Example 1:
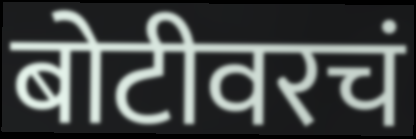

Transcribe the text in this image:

बोटीवरचं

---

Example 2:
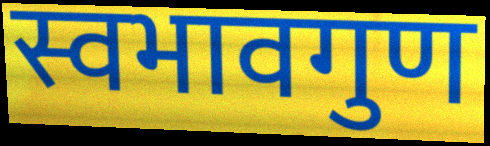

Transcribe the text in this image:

स्वभावगुण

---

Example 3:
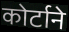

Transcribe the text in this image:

कोर्टाने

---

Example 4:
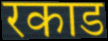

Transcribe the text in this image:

रकाड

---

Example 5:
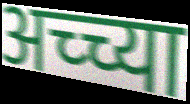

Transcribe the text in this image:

अच्च्या